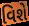
વિશે